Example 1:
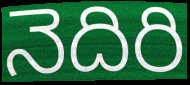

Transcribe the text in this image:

నెదిరి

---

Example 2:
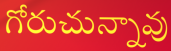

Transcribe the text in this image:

గోరుచున్నావు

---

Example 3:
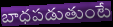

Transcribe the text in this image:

బాధపడుతుంటే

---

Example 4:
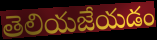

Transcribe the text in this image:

తెలియజేయడం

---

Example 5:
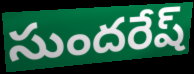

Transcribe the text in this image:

సుందరేష్